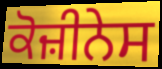
ਕੋਜ਼ੀਨੇਸ